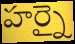
హర్నై